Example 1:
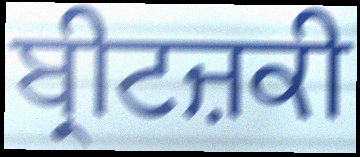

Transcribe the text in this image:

ਬ੍ਰੀਟਜ਼ਕੀ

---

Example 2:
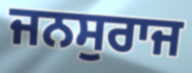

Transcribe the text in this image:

ਜਨਸੁਰਾਜ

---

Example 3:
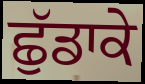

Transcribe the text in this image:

ਛੁੱਡਾਕੇ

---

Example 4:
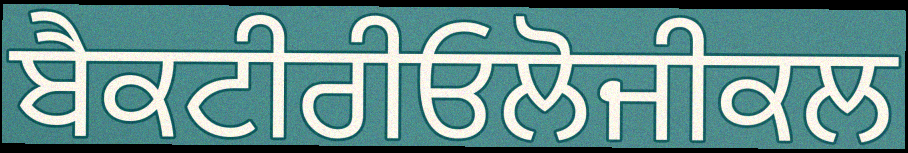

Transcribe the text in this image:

ਬੈਕਟੀਰੀਓਲੋਜੀਕਲ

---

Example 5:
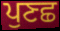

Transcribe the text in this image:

ਪੁਣਛ